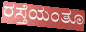
ರಸ್ತೆಯಂತೂ